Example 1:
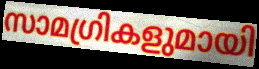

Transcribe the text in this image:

സാമഗ്രികളുമായി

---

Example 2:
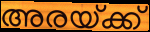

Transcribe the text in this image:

അരയ്‌ക്ക്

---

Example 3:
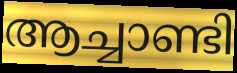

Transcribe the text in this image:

ആച്ചാണ്ടി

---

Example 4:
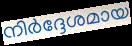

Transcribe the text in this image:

നിർദ്ദേശമായ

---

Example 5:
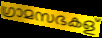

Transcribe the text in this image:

ഗ്രാമസഭകള്